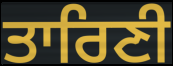
ਤਾਰਿਣੀ